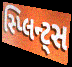
સ્પ્લિન્ટ્સ